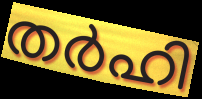
തർഹി